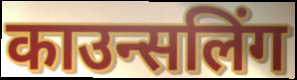
काउन्सलिंग